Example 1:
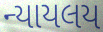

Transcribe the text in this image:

ન્યાયલય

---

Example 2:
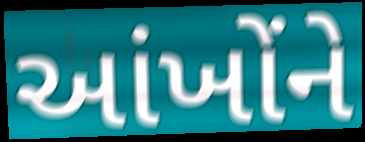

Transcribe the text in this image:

આંખોંને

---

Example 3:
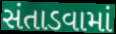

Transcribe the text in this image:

સંતાડવામાં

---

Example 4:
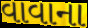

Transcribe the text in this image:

વાવાના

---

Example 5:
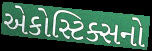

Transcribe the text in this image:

એકોસ્ટિક્સનો